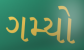
ગમ્યો